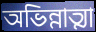
অভিন্নাত্মা